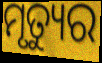
ମୃତ୍ୟୁର